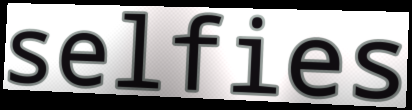
selfies